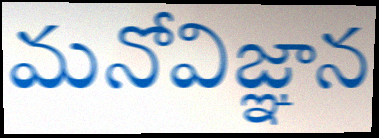
మనోవిజ్ఞాన